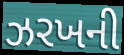
ઝરખની